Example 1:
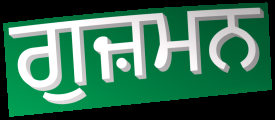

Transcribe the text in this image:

ਗੁਜ਼ਮਨ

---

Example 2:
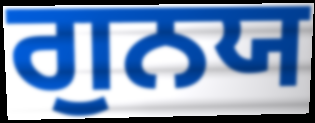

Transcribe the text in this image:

ਗੁਨਯ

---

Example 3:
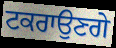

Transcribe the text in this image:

ਟਕਰਾਉਣਗੇ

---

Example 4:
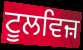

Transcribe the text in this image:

ਟੂਲਵਿਜ਼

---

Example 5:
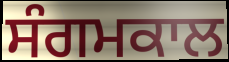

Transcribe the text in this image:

ਸੰਗਮਕਾਲ